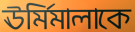
ঊর্মিমালাকে